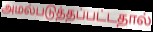
அமல்படுத்தப்பட்டதால்